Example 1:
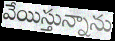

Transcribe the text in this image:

వేయిస్తున్నాను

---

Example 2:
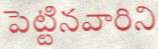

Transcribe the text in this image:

పెట్టినవారిని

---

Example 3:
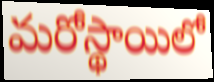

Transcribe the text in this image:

మరోస్థాయిలో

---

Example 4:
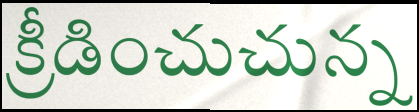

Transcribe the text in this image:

క్రీడించుచున్న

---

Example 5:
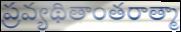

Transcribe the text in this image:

ప్రవ్యథితాంతరాత్మా